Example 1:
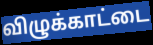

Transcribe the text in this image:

விழுக்காட்டை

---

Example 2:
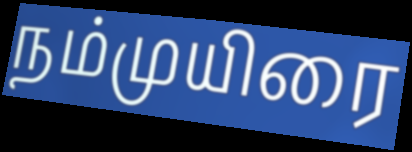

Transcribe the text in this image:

நம்முயிரை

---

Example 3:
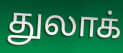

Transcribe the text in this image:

துலாக்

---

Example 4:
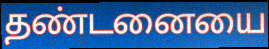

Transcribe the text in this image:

தண்டனையை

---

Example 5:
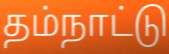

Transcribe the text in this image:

தம்நாட்டு